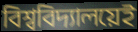
বিশ্ববিদ্যালয়েই